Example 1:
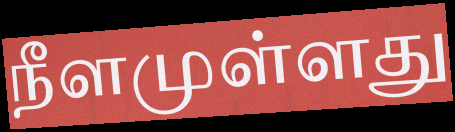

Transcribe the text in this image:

நீளமுள்ளது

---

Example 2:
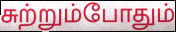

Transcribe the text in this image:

சுற்றும்போதும்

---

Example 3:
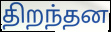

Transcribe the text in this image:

திறந்தன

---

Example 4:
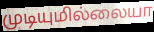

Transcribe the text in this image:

முடியுமில்லையா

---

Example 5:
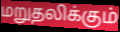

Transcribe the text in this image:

மறுதலிக்கும்